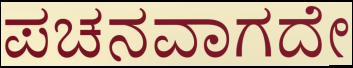
ಪಚನವಾಗದೇ